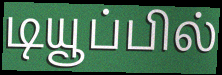
டியூப்பில்